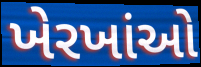
ખેરખાંઓ